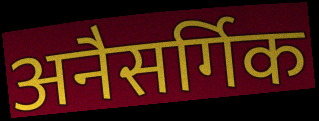
अनैसर्गिक